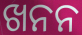
ଖନନ